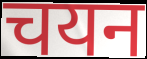
चयन